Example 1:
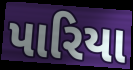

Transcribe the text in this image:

પારિયા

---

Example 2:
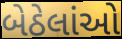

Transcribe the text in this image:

બેઠેલાંઓ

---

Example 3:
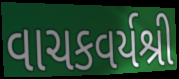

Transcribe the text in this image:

વાચકવર્યશ્રી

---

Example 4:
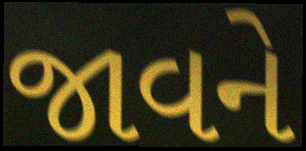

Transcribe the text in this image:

જાવને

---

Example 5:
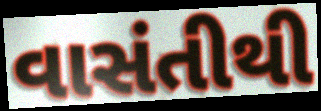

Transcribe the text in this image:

વાસંતીથી